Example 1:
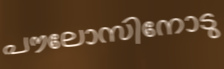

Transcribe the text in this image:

പൗലോസിനോടു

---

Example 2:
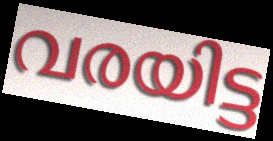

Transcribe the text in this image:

വരയിട്ട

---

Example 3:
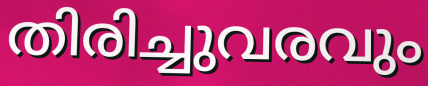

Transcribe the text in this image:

തിരിച്ചുവരവും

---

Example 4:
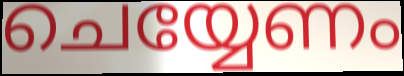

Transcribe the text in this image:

ചെയ്യേണം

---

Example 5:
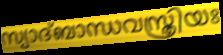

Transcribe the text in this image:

സ്യാദ്ബാന്ധവസ്ത്രിയഃ